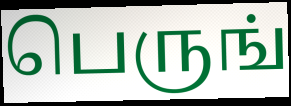
பெருங்